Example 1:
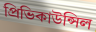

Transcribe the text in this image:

প্রিভিকাউন্সিল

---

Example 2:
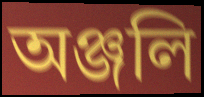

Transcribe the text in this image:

অঞ্জলি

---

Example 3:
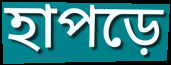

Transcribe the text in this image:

হাপড়ে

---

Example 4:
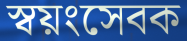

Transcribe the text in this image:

স্বয়ংসেবক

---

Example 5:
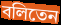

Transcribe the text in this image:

বলিতেন